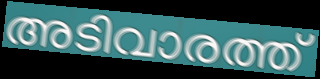
അടിവാരത്ത്